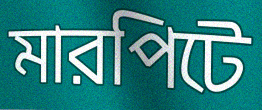
মারপিটে